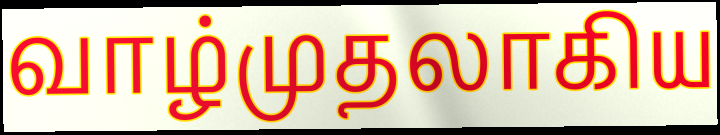
வாழ்முதலாகிய